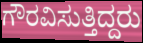
ಗೌರವಿಸುತ್ತಿದ್ದರು